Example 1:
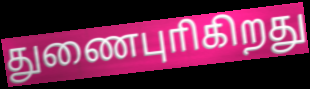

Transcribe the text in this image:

துணைபுரிகிறது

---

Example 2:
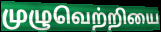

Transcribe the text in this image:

முழுவெற்றியை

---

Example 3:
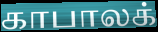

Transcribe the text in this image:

காபாலக்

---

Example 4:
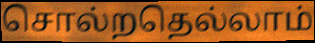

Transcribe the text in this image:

சொல்றதெல்லாம்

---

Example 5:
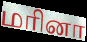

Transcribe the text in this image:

மரினா